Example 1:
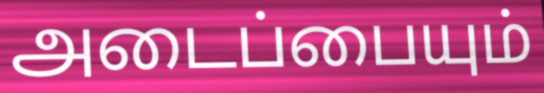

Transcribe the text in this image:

அடைப்பையும்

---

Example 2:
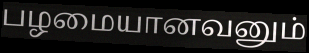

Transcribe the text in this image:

பழமையானவனும்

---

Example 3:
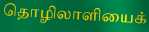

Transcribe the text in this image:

தொழிலாளியைக்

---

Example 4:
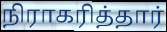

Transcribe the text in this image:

நிராகரித்தார்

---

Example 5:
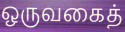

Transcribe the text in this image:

ஒருவகைத்